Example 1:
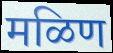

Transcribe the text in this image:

मळिण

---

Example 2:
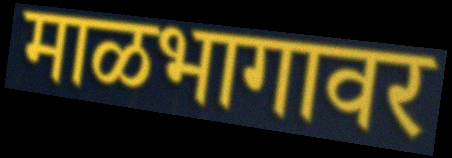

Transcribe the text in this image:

माळभागावर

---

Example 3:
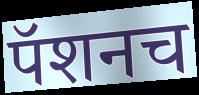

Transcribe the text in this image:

पॅशनच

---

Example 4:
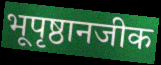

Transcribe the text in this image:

भूपृष्ठानजीक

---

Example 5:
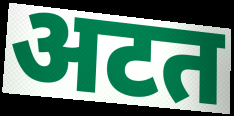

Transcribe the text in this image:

अटत